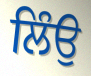
ਲਿੰਉ